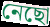
নেছো